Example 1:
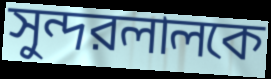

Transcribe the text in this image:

সুন্দরলালকে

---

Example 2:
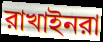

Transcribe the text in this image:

রাখাইনরা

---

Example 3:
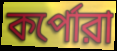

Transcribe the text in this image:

কর্পোরা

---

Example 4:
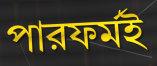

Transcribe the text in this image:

পারফর্মই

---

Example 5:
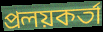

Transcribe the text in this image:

প্রলয়কর্তা